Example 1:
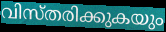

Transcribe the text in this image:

വിസ്തരിക്കുകയും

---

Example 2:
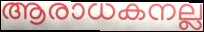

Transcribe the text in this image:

ആരാധകനല്ല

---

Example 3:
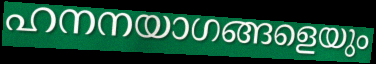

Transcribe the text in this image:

ഹനനയാഗങ്ങളെയും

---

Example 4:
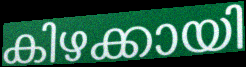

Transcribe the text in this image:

കിഴക്കായി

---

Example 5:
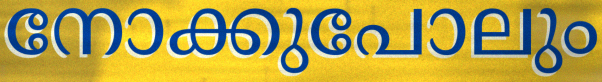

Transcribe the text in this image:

നോക്കുപോലും